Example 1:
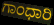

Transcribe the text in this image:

ಗಾಂಧಾರಿ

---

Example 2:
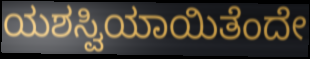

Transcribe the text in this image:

ಯಶಸ್ವಿಯಾಯಿತೆಂದೇ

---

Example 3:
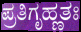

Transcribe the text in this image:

ಪ್ರತಿಗೃಹ್ಣತಃ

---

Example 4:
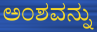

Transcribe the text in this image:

ಅಂಶವನ್ನು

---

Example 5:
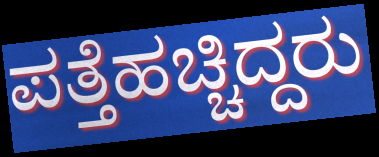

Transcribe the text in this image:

ಪತ್ತೆಹಚ್ಚಿದ್ದರು